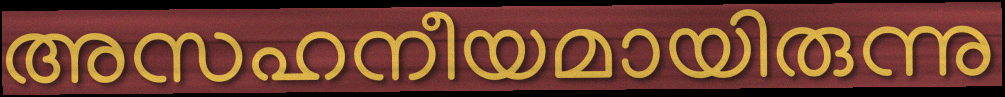
അസഹനീയമായിരുന്നു